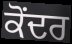
ਕੋਂਦਰ